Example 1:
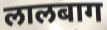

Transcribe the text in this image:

लालबाग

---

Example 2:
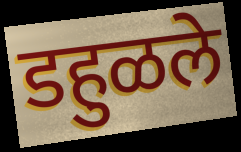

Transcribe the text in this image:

डहुळले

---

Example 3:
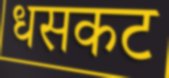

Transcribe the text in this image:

धसकट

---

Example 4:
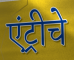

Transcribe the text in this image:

एंट्रीचे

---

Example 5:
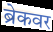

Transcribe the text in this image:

ब्रेकवर